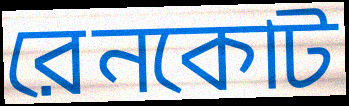
রেনকোট